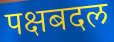
पक्षबदल